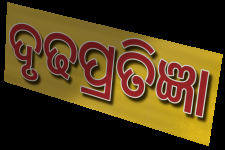
ଦୃଢପ୍ରତିଜ୍ଞା